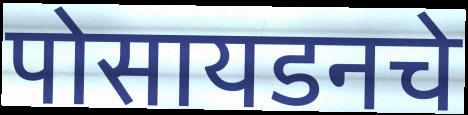
पोसायडनचे